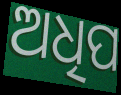
ଅଧିପ